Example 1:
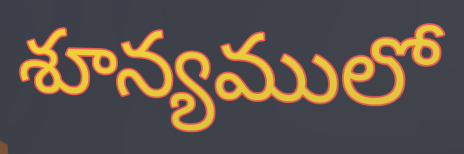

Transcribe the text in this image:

శూన్యములో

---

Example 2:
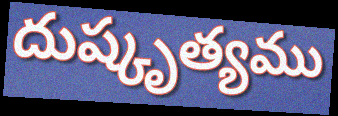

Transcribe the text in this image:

దుష్కృత్యము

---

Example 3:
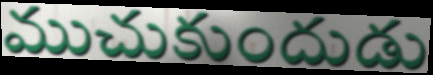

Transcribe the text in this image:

ముచుకుందుడు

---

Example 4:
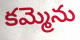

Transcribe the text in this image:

కమ్మెను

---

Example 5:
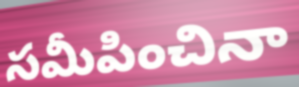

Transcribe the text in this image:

సమీపించినా